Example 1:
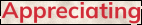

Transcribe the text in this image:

Appreciating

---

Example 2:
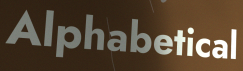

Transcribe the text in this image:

Alphabetical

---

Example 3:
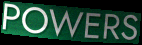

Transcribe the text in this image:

POWERS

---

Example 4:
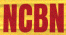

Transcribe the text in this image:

NCBN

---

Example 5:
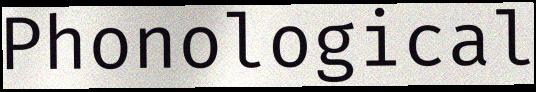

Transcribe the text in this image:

Phonological